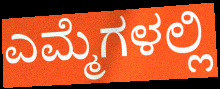
ಎಮ್ಮೆಗಳಲ್ಲಿ